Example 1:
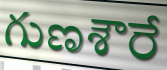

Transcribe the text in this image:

గుణశౌరే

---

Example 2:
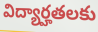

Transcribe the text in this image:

విద్యార్హతలకు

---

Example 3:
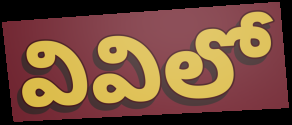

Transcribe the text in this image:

వివిలో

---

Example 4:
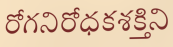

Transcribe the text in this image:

రోగనిరోధకశక్తిని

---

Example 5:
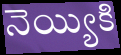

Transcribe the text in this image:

నెయ్యికి